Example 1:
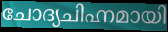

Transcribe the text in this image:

ചോദ്യചിഹ്നമായി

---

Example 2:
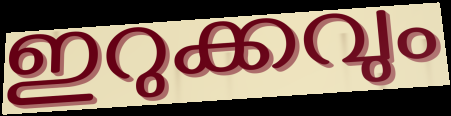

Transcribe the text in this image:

ഇറുക്കവും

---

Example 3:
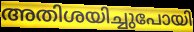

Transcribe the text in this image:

അതിശയിച്ചുപോയി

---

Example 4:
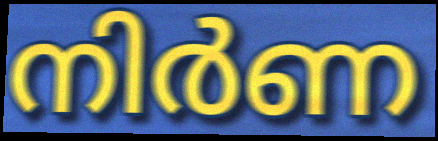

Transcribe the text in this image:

നിർണ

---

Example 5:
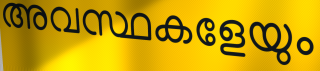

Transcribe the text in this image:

അവസ്ഥകളേയും